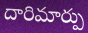
దారిమార్పు